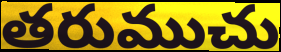
తరుముచు